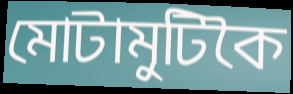
মোটামুটিকৈ